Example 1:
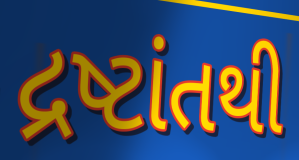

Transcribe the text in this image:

દ્રષ્ટાંતથી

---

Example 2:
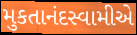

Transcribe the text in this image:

મુકતાનંદસ્વામીએ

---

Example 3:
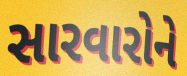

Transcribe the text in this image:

સારવારોને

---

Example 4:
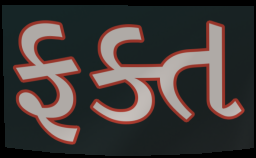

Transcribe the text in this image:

ફક્ત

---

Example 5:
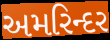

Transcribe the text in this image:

અમરિન્દર